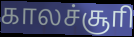
காலச்சூரி